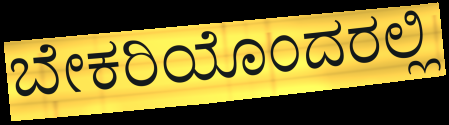
ಬೇಕರಿಯೊಂದರಲ್ಲಿ